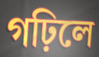
গঢ়িলে